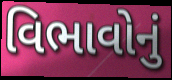
વિભાવોનું